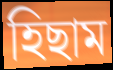
হিছাম